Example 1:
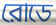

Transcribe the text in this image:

রোডে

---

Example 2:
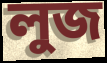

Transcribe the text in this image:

লুজ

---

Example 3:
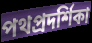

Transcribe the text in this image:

পথপ্রদর্শিকা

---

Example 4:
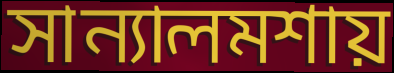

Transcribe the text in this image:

সান্যালমশায়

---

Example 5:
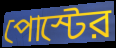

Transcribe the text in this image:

পোস্টের